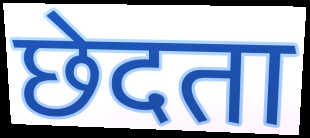
छेदता